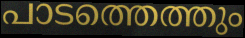
പാടത്തെത്തും